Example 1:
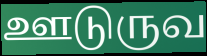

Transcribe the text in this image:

ஊடுருவ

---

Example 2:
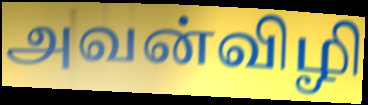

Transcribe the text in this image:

அவன்விழி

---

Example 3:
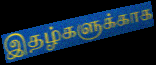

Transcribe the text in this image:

இதழ்களுக்காக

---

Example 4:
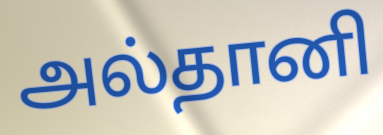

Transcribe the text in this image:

அல்தானி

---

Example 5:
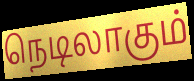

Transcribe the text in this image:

நெடிலாகும்